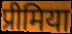
प्रीमिया